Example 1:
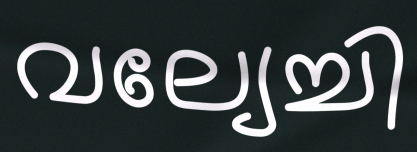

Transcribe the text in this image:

വല്യേച്ചി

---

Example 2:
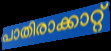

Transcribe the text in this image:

പാതിരാക്കാറ്റ്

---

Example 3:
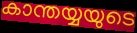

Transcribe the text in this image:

കാന്തയ്യയുടെ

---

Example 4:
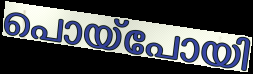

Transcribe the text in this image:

പൊയ്പോയി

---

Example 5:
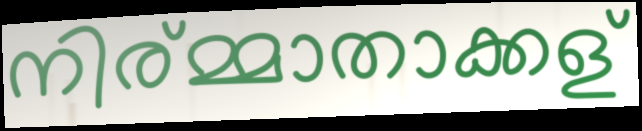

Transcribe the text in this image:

നിര്മ്മാതാക്കള്